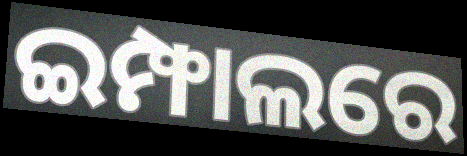
ଇମ୍ଫାଲରେ